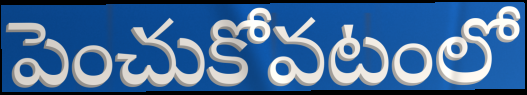
పెంచుకోవటంలో